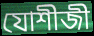
যোশীজী